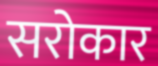
सरोकार